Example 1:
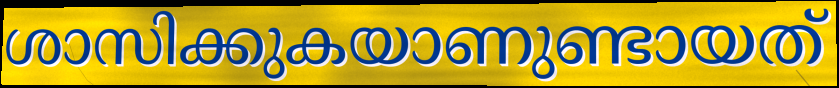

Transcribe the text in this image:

ശാസിക്കുകയാണുണ്ടായത്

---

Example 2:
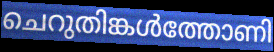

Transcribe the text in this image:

ചെറുതിങ്കൾത്തോണി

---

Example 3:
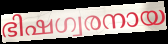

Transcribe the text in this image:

ഭിഷഗ്വരനായ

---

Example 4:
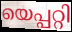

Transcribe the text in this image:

യെപ്പറ്റി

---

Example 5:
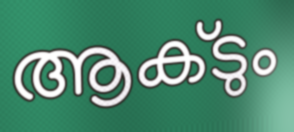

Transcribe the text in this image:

ആക്ടും